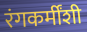
रंगकर्मींशी